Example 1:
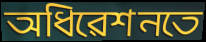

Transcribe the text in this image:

অধিৱেশনতে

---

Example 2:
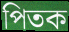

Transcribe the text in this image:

পিতক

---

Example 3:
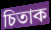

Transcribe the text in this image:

চিতাক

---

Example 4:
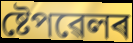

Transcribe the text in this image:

ষ্টেপৱেলৰ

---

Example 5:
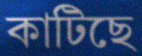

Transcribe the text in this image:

কাটিছে